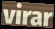
virar